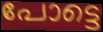
പോട്ടെ